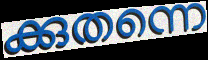
ക്കുതന്നെ